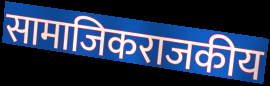
सामाजिकराजकीय